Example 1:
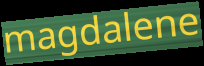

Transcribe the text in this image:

magdalene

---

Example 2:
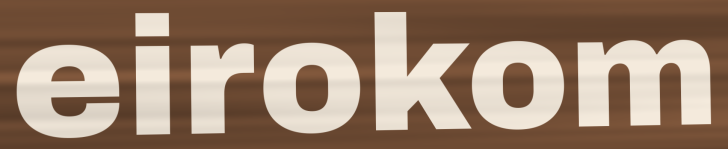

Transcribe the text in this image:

eirokom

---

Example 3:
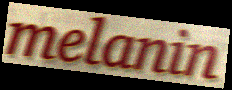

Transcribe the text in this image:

melanin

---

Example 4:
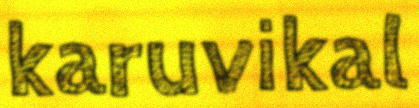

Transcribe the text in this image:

karuvikal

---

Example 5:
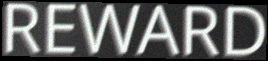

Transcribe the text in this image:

REWARD